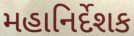
મહાનિર્દેશક